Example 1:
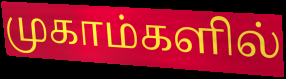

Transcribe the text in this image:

முகாம்களில்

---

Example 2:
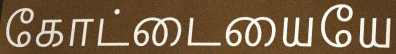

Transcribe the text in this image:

கோட்டையையே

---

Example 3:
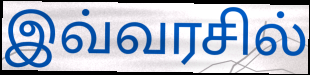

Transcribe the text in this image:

இவ்வரசில்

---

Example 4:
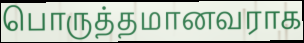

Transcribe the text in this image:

பொருத்தமானவராக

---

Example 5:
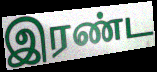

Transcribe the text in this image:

இரண்ட